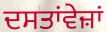
ਦਸਤਾਂਵੇਜ਼ਾਂ